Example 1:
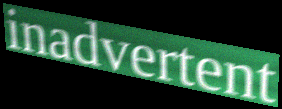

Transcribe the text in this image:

inadvertent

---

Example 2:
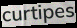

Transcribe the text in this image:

curtipes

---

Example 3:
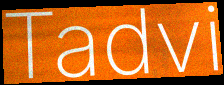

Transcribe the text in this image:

Tadvi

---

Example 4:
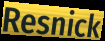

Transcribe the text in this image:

Resnick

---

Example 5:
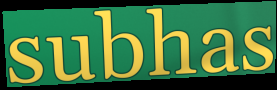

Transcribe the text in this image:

subhas